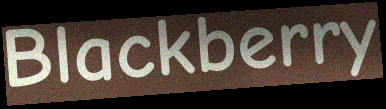
Blackberry